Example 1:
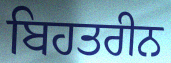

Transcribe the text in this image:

ਬਿਹਤਰੀਨ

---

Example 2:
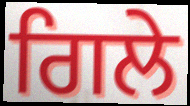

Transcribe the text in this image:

ਗਿਲੇ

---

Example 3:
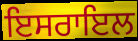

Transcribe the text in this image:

ਇਸਰਾਇਲ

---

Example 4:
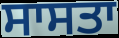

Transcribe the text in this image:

ਸਾਸਤਾ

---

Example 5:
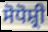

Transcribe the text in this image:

ਸੋਧੋਸ਼੍ਰੀ